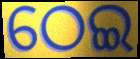
ଠେଇ